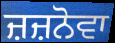
ਜ਼ਜ਼ਨੋਵਾ